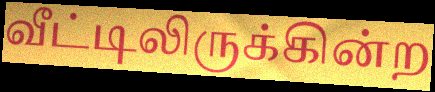
வீட்டிலிருக்கின்ற